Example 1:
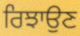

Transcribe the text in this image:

ਰਿਝਾਉਣ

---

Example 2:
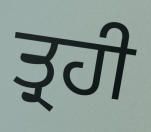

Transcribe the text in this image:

ਤ੍ਰਹੀ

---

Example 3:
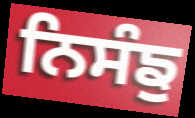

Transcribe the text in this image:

ਨਿਸੰਙੁ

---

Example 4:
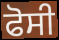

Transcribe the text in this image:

ਫੋਸੀ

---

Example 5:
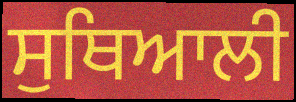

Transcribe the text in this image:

ਸੁਥਿਆਲੀ